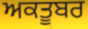
ਅਕਤੂਬਰ